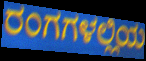
ರಂಗಗಳಲ್ಲಿಯ